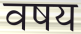
वषय